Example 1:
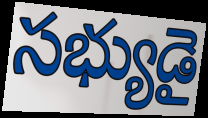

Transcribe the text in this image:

సభ్యుడై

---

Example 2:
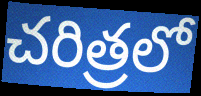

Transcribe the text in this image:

చరిత్రలో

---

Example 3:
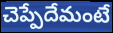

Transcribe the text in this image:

చెప్పేదేమంటే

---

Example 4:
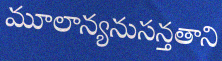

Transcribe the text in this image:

మూలాన్యనుసన్తతాని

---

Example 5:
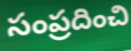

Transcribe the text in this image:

సంప్రదించి